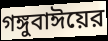
গঙ্গুবাঈয়ের